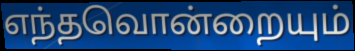
எந்தவொன்றையும்